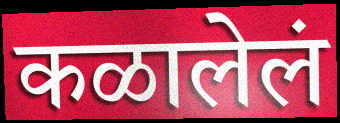
कळालेलं